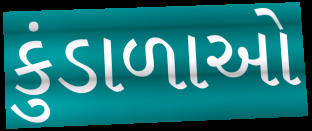
કુંડાળાઓ